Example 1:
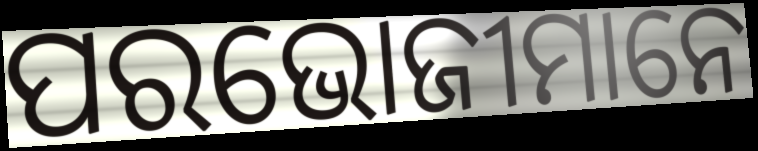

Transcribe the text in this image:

ପରଭୋଜୀମାନେ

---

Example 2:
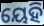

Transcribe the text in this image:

ୟେହି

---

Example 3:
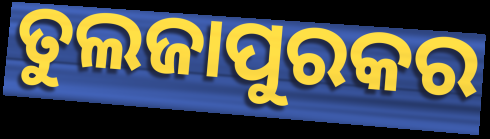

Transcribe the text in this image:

ତୁଲଜାପୁରକର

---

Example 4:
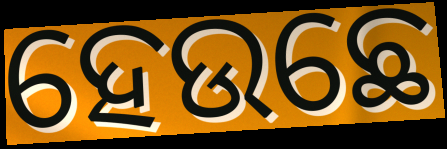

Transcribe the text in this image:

ହେଉଛେ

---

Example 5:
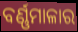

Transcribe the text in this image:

ବର୍ଣ୍ଣମାଳାର